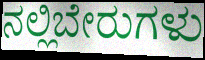
ನಲ್ಲಿಬೇರುಗಳು